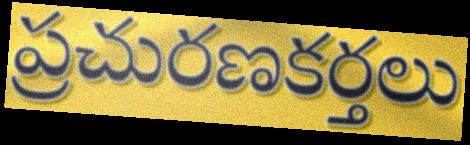
ప్రచురణకర్తలు